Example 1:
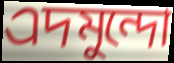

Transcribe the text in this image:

এদমুন্দো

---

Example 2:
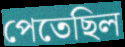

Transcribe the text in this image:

পেতেছিল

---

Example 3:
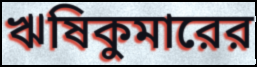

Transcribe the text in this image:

ঋষিকুমারের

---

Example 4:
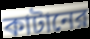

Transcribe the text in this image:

কাটানের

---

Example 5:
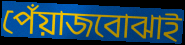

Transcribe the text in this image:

পেঁয়াজবোঝাই